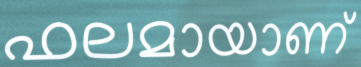
ഫലമായാണ്